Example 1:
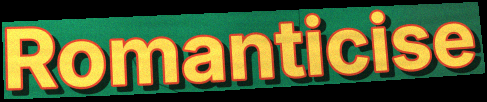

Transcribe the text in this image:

Romanticise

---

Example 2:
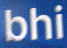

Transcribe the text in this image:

bhi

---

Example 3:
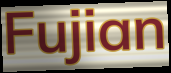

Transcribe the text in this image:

Fujian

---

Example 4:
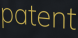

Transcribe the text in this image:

patent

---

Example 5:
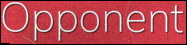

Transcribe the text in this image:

Opponent